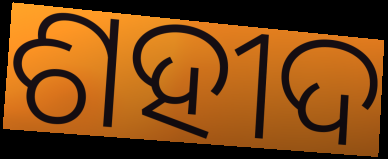
ଶହୀଦ